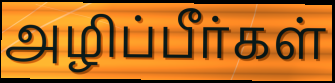
அழிப்பீர்கள்